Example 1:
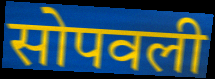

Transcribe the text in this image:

सोपवली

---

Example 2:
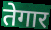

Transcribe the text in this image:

तेगार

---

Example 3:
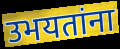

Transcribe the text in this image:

उभयतांना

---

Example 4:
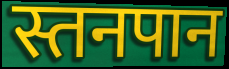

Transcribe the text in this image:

स्तनपान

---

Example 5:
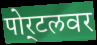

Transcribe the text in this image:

पोर्टलवर